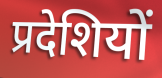
प्रदेशियों